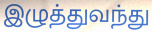
இழுத்துவந்து